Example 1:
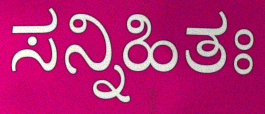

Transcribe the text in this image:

ಸನ್ನಿಹಿತಃ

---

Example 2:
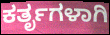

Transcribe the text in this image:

ಕರ್ತೃಗಳಾಗಿ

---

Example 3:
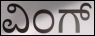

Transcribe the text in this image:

ವಿಂಗ್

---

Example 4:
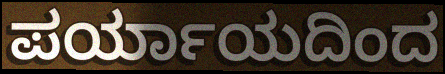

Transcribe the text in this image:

ಪರ್ಯಾಯದಿಂದ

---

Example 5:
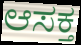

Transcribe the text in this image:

ಆಸಕ್ತ